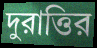
দুরাত্তির